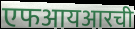
एफआयआरची